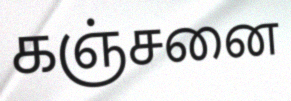
கஞ்சனை